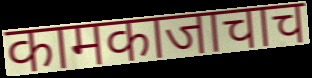
कामकाजाचाच